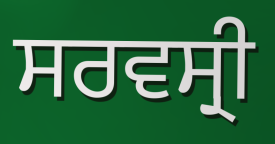
ਸਰਵਸ੍ਰੀ